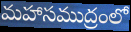
మహాసముద్రంలో